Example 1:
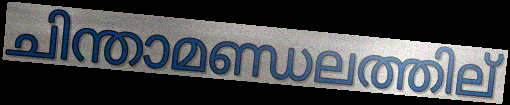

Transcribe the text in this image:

ചിന്താമണ്ഡലത്തില്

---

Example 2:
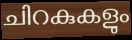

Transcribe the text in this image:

ചിറകുകളും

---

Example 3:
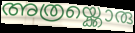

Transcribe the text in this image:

അത്രയ്ക്കൊരു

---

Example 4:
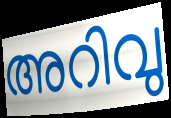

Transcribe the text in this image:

അറിവു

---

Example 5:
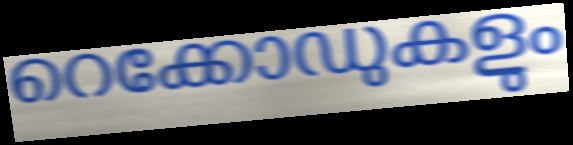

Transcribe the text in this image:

റെക്കോഡുകളും